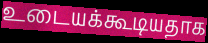
உடையக்கூடியதாக